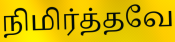
நிமிர்த்தவே